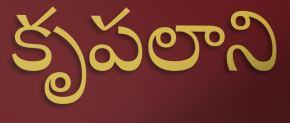
కృపలాని